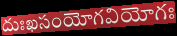
దుఃఖసంయోగవియోగః